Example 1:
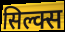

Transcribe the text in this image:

सिल्क्स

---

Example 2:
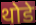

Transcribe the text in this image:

थोडे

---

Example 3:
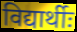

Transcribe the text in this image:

विद्यार्थीः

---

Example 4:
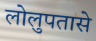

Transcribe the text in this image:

लोलुपतासे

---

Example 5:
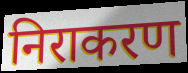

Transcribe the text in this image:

निराकरण